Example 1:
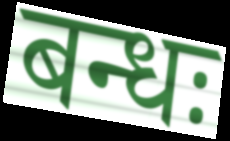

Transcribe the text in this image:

बन्धः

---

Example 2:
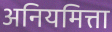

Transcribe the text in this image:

अनियमित्ता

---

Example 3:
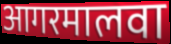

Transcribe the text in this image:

आगरमालवा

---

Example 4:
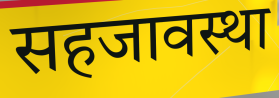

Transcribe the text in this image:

सहजावस्था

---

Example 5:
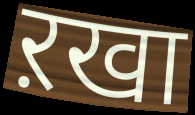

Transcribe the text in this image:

ऱखा